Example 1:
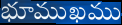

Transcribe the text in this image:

భూముఖము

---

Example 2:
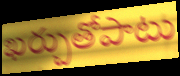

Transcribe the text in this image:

ఖర్చుతోపాటు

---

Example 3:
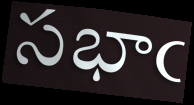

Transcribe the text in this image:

సభాఁ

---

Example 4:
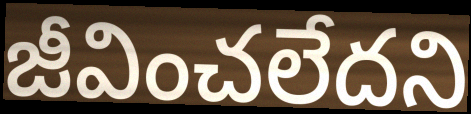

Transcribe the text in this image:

జీవించలేదని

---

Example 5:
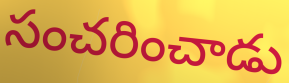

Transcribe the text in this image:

సంచరించాడు